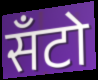
सँटो